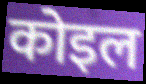
कोइल